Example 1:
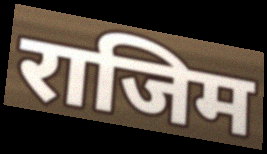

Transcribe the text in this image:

राजिम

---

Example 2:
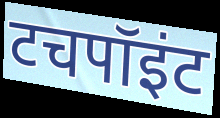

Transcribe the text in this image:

टचपॉइंट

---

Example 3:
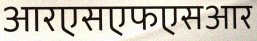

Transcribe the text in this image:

आरएसएफएसआर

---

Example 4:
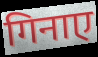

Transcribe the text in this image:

गिनाए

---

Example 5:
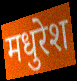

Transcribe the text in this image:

मधुरेश